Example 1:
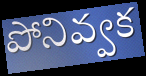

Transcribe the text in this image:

పోనివ్వక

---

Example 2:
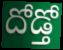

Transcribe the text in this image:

దోడ్తో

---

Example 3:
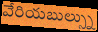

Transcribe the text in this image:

వేరియబుల్స్ను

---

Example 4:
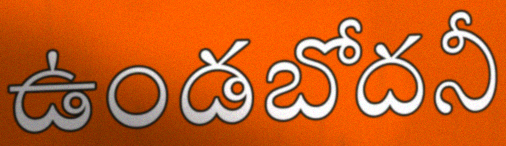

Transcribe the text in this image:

ఉండబోదనీ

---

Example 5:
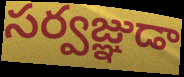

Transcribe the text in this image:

సర్వజ్ఞుడా